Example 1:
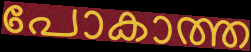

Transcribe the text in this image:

പോകാത്ത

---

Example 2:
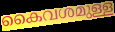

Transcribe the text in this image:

കൈവശമുള്ള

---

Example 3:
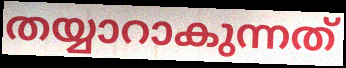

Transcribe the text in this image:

തയ്യാറാകുന്നത്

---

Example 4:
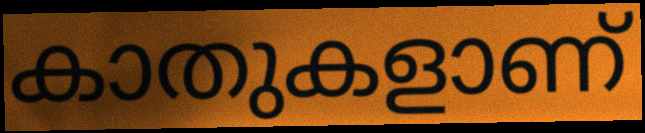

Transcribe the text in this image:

കാതുകളാണ്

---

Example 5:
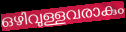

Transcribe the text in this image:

ഒഴിവുള്ളവരാകും